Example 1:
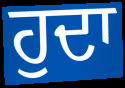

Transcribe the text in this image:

ਹੁਦਾ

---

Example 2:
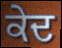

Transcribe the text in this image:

ਕੇਦ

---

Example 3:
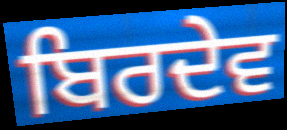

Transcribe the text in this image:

ਬਿਰਦੇਵ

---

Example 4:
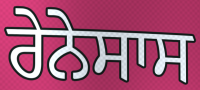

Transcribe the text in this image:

ਰੇਨੇਸਾਸ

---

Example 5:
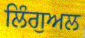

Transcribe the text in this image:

ਲਿੰਗੁਅਲ